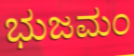
ಭುಜಮಂ